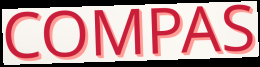
COMPAS